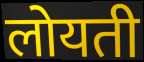
लोयती